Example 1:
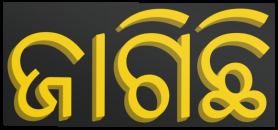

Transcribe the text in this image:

ଜାଗିଛି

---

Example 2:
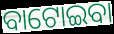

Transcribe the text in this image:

ବାଟୋଇବା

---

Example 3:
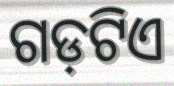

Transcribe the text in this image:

ଗଡ଼ଟିଏ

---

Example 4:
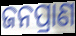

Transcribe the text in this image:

ଜନପ୍ରାଣ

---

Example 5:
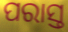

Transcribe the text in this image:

ପରାସ୍ତ